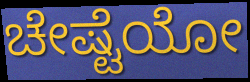
ಚೇಷ್ಟೆಯೋ